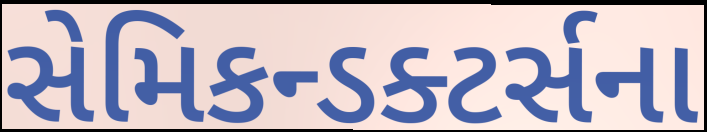
સેમિકન્ડક્ટર્સના